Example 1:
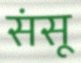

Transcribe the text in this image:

संसू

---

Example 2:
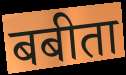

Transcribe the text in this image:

बबीता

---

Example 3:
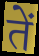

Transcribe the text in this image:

तें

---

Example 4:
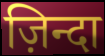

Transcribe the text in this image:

ज़िन्दा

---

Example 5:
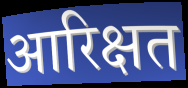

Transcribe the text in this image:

आरिक्षत